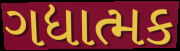
ગદ્યાત્મક